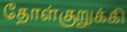
தோள்குறுக்கி